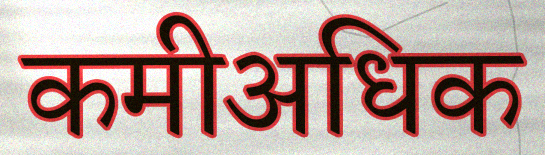
कमीअधिक